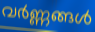
വർണ്ണങ്ങൾ